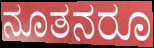
ನೂತನರೂ